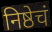
निष्ठेचं